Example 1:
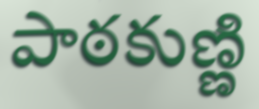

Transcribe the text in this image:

పాఠకుణ్ణి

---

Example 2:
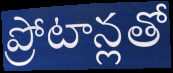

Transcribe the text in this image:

ప్రోటాన్లతో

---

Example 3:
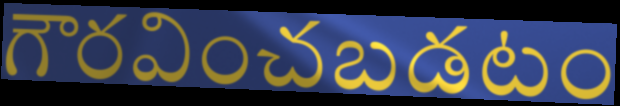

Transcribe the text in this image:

గౌరవించబడటం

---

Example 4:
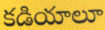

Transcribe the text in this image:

కడియాలూ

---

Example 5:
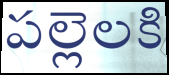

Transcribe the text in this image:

పల్లెలకి